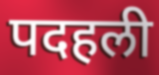
पदहली